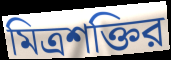
মিত্রশক্তির